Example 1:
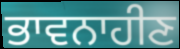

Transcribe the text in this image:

ਭਾਵਨਾਹੀਣ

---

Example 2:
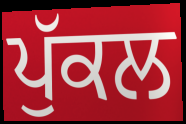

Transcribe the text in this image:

ਪੁੱਕਲ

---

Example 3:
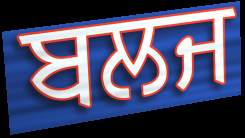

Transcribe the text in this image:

ਬਲਜ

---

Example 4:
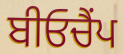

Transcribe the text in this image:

ਬੀਓਚੈਂਪ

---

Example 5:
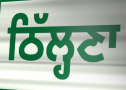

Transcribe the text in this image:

ਠਿੱਲ੍ਹਣਾ